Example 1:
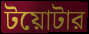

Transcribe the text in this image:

টয়োটার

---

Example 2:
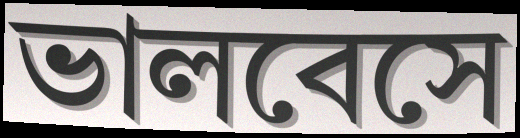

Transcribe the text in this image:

ভালবেসে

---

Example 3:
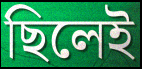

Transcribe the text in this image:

ছিলেই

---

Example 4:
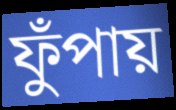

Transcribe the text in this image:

ফুঁপায়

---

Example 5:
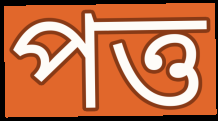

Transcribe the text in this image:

পত্ত